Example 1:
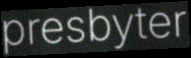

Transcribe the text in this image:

presbyter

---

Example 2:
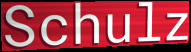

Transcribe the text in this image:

Schulz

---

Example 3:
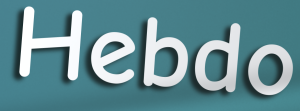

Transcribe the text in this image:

Hebdo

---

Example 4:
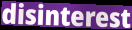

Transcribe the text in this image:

disinterest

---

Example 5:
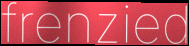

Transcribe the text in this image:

frenzied